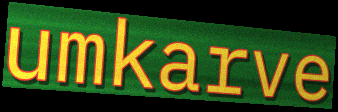
umkarve